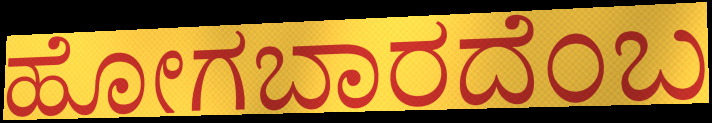
ಹೋಗಬಾರದೆಂಬ